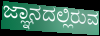
ಜ್ಞಾನದಲ್ಲಿರುವ